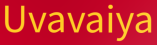
Uvavaiya